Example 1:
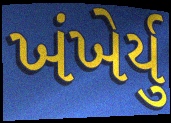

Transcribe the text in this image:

ખંખેર્યુ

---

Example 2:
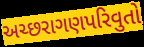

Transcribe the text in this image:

અચ્છરાગણપરિવુતો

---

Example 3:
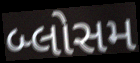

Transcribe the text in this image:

બ્લોસમ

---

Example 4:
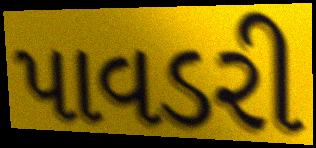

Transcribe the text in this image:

પાવડરી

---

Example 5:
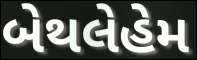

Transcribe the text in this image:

બેથલેહેમ